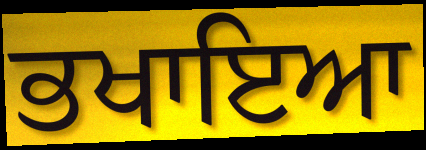
ਭਖਾਇਆ